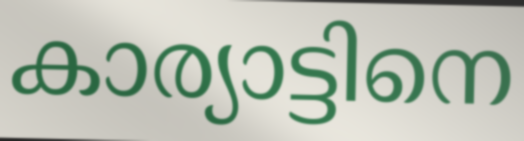
കാര്യാട്ടിനെ